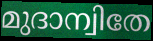
മുദാന്വിതേ